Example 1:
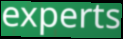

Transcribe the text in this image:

experts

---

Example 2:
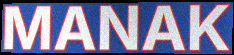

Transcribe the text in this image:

MANAK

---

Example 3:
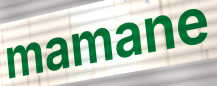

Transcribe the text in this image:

mamane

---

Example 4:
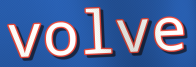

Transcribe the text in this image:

volve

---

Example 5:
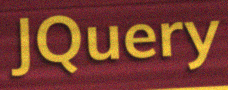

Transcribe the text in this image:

JQuery